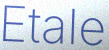
Etale